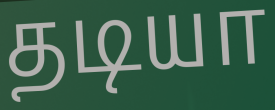
தடியா